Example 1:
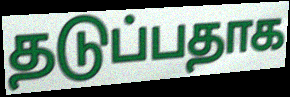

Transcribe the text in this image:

தடுப்பதாக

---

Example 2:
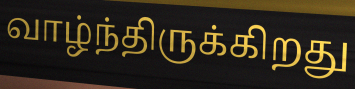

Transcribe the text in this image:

வாழ்ந்திருக்கிறது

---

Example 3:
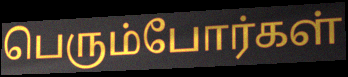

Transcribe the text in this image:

பெரும்போர்கள்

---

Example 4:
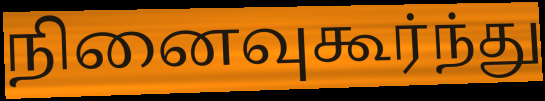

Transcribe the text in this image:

நினைவுகூர்ந்து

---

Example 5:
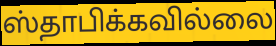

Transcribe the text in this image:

ஸ்தாபிக்கவில்லை